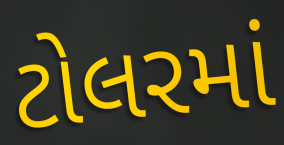
ટોલરમાં